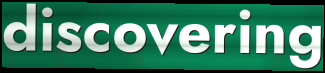
discovering